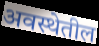
अवस्थेतील